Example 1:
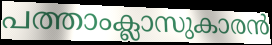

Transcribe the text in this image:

പത്താംക്ലാസുകാരൻ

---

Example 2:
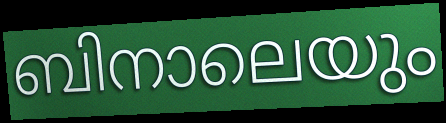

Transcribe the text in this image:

ബിനാലെയും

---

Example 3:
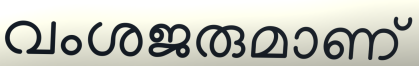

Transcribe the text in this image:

വംശജരുമാണ്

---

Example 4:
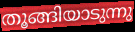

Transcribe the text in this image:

തൂങ്ങിയാടുന്നു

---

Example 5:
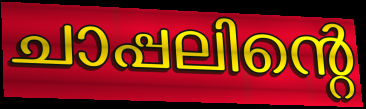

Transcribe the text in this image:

ചാപ്പലിന്റെ